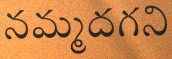
నమ్మదగని